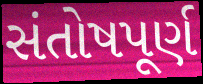
સંતોષપૂર્ણ